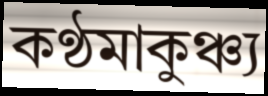
কণ্ঠমাকুঞ্চ্য